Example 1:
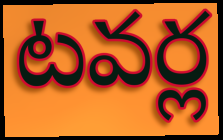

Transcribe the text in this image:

టవర్ల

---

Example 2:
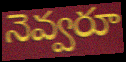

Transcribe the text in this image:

నెవ్వరూ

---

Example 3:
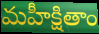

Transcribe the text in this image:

మహీక్షితాం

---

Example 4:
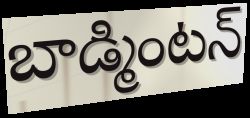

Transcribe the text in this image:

బాడ్మింటన్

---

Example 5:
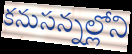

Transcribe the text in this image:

కనుసన్నల్లోని